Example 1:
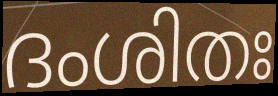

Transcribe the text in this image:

ദംശിതഃ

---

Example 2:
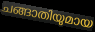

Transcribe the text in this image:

ചങ്ങാതിയുമായ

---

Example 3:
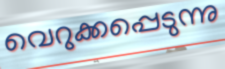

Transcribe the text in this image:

വെറുക്കപ്പെടുന്നു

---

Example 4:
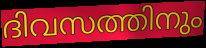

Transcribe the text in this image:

ദിവസത്തിനും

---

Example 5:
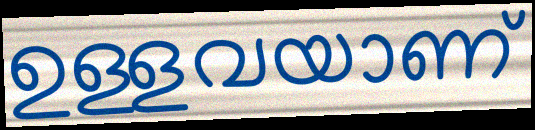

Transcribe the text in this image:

ഉള്ളവയാണ്